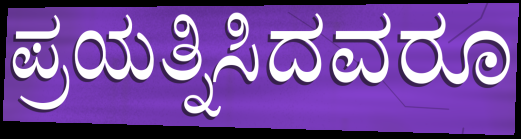
ಪ್ರಯತ್ನಿಸಿದವರೂ